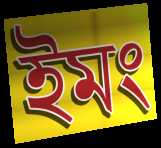
ইমং